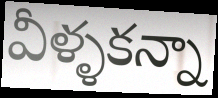
వీళ్ళకన్నా